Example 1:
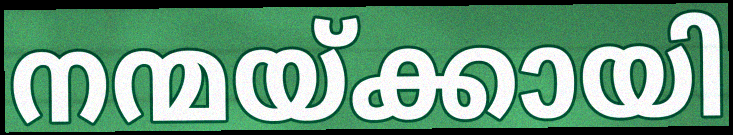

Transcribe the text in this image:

നന്മയ്ക്കായി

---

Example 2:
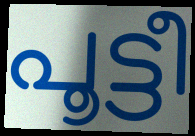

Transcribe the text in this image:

പൂട്ടീ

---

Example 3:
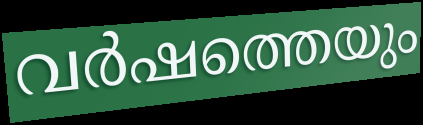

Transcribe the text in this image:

വർഷത്തെയും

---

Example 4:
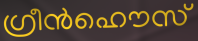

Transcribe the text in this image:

ഗ്രീൻഹൌസ്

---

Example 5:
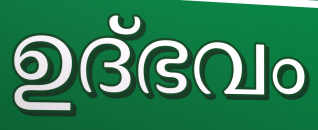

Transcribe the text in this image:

ഉദ്ഭവം